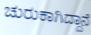
ಚುರುಕಾಗಿದ್ದಾನೆ